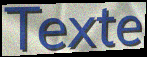
Texte